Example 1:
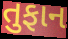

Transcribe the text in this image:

તુફાન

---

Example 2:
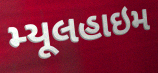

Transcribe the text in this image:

મ્યૂલહાઇમ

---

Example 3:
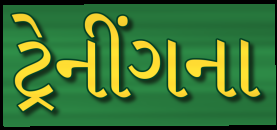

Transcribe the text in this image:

ટ્રેનીંગના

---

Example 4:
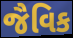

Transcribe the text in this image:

જૈવિક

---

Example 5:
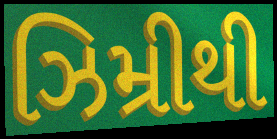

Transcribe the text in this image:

ઝિમ્રીથી